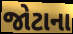
જોટાના